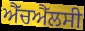
ਐੱਚਐੱਲਸੀ